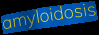
amyloidosis